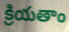
క్రియతాం